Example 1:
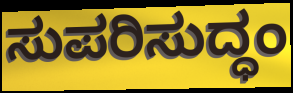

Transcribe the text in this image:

ಸುಪರಿಸುದ್ಧಂ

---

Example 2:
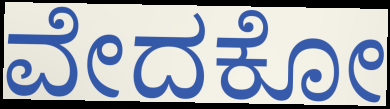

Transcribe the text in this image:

ವೇದಕೋ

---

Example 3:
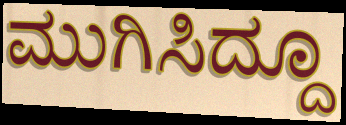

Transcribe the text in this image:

ಮುಗಿಸಿದ್ದೂ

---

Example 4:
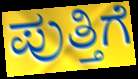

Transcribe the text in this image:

ಪುತ್ತಿಗೆ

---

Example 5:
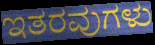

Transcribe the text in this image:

ಇತರವುಗಳು